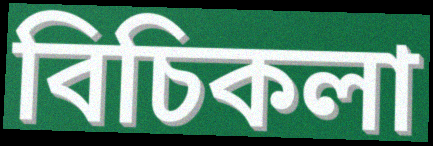
বিচিকলা